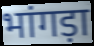
भांगड़ा